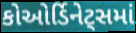
કોઓર્ડિનેટ્સમાં